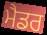
ਮੈਡਰ